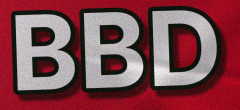
BBD